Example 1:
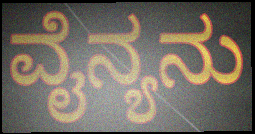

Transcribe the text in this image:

ವೈನ್ಯನು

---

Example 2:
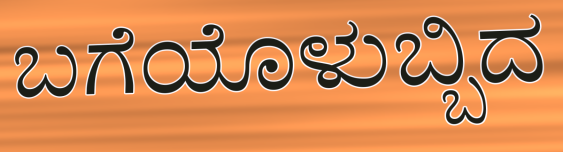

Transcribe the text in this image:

ಬಗೆಯೊಳುಬ್ಬಿದ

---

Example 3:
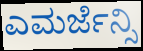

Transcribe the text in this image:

ಎಮರ್ಜೆನ್ಸಿ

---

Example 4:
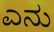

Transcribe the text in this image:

ಎನು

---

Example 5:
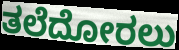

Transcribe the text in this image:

ತಲೆದೋರಲು